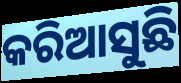
କରିଆସୁଛି